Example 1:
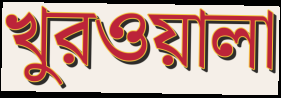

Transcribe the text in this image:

খুরওয়ালা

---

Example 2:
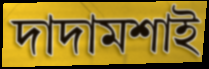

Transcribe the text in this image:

দাদামশাই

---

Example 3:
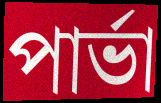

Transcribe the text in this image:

পার্ভা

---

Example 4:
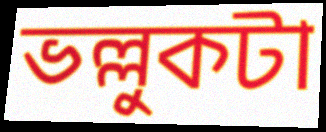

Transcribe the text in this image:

ভল্লুকটা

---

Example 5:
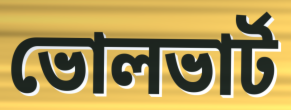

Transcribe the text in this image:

ভোলভার্ট